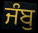
ਜੰਬੁ